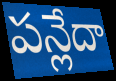
పన్లేదా